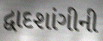
દ્વાદશાંગીની